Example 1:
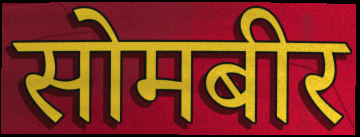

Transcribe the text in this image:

सोमबीर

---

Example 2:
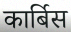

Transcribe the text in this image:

कार्बिस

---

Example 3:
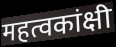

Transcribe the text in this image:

महत्वकांक्षी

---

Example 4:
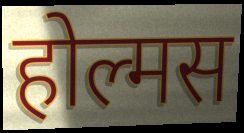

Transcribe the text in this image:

होल्मस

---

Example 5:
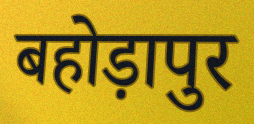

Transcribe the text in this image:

बहोड़ापुर